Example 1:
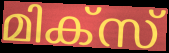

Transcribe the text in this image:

മിക്‌സ്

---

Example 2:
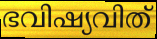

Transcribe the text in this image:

ഭവിഷ്യവിത്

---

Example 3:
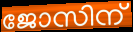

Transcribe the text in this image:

ജോസിന്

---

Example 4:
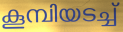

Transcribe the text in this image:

കൂമ്പിയടച്ച്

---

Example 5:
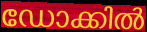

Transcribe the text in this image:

ഡോക്കിൽ